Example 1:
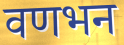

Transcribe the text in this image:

वणभन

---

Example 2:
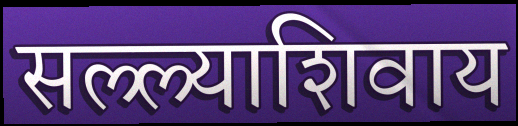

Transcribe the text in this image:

सल्ल्याशिवाय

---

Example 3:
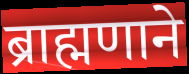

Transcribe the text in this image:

ब्राह्मणाने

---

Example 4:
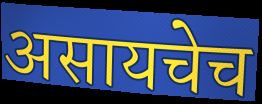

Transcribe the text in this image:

असायचेच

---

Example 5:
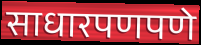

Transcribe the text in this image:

साधारपणपणे